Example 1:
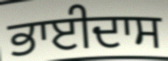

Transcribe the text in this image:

ਭਾਈਦਾਸ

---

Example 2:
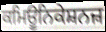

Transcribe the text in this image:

ਕਮਿਊਨਿਕੇਸ਼ਨਜ਼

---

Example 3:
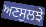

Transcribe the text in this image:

ਅਣਸੁਲਝੇ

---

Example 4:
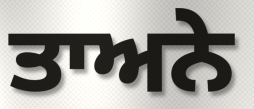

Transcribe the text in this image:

ਤਾਅਨੇ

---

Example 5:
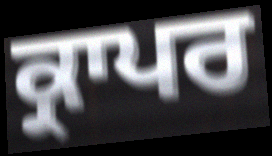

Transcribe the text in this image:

ਕ੍ਰਾਪਰ